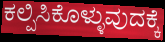
ಕಲ್ಪಿಸಿಕೊಳ್ಳುವುದಕ್ಕೆ